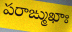
పరాఙ్ముఖాః